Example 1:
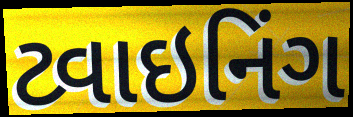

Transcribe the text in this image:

ટ્વાઇનિંગ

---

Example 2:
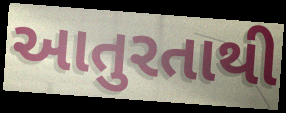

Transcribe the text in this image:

આતુરતાથી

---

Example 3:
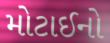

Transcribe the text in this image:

મોટાઈનો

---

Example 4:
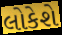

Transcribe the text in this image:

લોકેશે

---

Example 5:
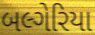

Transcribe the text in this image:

બલ્ગેરિયા